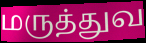
மருத்துவ